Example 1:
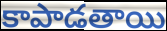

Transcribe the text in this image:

కాపాడతాయి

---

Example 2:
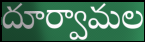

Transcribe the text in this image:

దూర్వామల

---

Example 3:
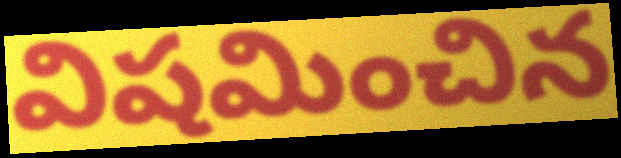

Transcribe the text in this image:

విషమించిన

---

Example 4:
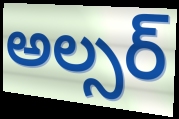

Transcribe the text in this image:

అల్సర్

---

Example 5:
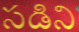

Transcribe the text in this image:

సడిని